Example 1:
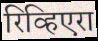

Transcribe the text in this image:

रिव्हिएरा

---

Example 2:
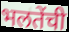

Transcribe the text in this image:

भलतेंची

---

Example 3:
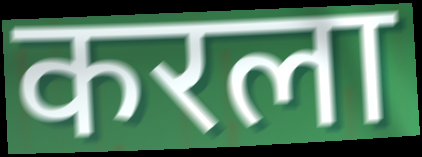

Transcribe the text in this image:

करला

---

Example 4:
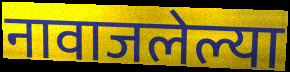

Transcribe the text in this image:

नावाजलेल्या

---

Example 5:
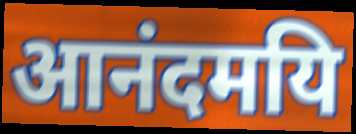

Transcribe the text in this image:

आनंदमयि